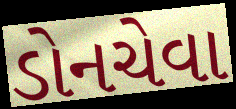
ડોનચેવા